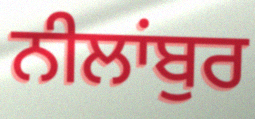
ਨੀਲਾਂਬੁਰ